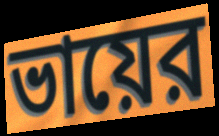
ভায়ের